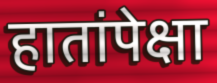
हातांपेक्षा